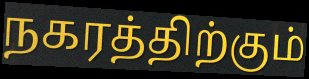
நகரத்திற்கும்